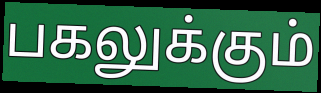
பகலுக்கும்